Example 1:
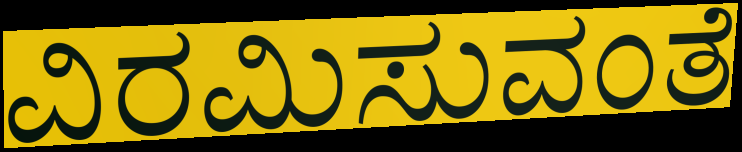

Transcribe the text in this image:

ವಿರಮಿಸುವಂತೆ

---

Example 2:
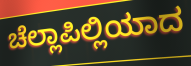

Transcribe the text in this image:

ಚೆಲ್ಲಾಪಿಲ್ಲಿಯಾದ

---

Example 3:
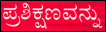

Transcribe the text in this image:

ಪ್ರಶಿಕ್ಷಣವನ್ನು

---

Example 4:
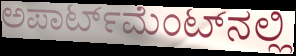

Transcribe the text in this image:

ಅಪಾರ್ಟ್‌ಮೆಂಟ್‌ನಲ್ಲಿ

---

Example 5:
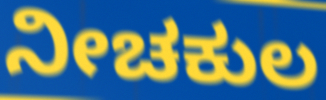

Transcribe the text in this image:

ನೀಚಕುಲ